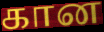
கான